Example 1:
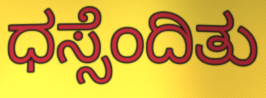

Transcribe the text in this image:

ಧಸ್ಸೆಂದಿತು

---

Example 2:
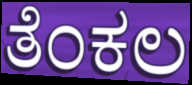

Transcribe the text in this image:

ತೆಂಕಲ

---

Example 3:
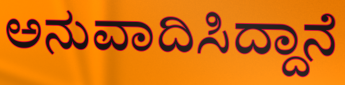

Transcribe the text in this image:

ಅನುವಾದಿಸಿದ್ದಾನೆ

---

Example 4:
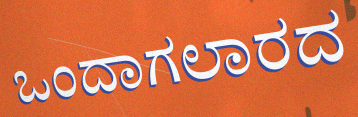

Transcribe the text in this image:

ಒಂದಾಗಲಾರದ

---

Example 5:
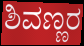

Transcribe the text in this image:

ಶಿವಣ್ಣರ